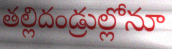
తల్లిదండ్రుల్లోనూ